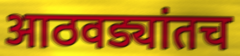
आठवड्यांतच